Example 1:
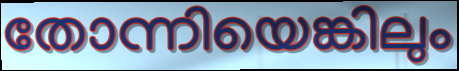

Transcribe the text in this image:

തോന്നിയെങ്കിലും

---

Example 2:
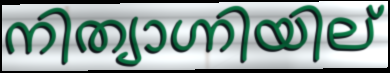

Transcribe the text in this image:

നിത്യാഗ്നിയില്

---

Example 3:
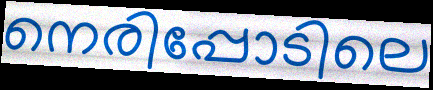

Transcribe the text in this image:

നെരിപ്പോടിലെ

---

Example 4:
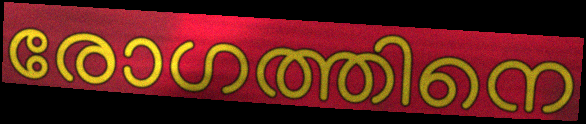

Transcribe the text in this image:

രോഗത്തിനെ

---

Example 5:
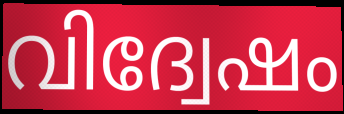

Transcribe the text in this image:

വിദ്വേഷം